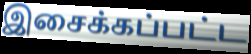
இசைக்கப்பட்ட